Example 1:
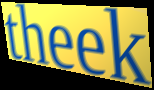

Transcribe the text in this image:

theek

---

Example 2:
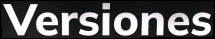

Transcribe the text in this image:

Versiones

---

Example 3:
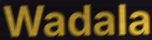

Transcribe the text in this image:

Wadala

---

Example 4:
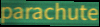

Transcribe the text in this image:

parachute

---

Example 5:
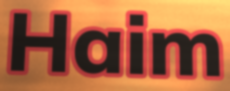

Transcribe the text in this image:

Haim